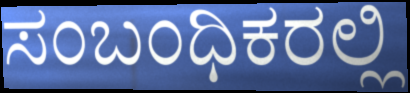
ಸಂಬಂಧಿಕರಲ್ಲಿ